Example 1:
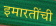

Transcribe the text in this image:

इमारतींची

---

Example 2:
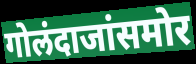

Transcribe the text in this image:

गोलंदाजांसमोर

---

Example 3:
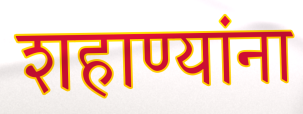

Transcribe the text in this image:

शहाण्यांना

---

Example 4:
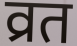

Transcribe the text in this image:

व्रत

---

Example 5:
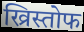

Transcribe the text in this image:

ख्रिस्तोफ